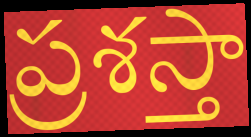
ప్రశస్తా